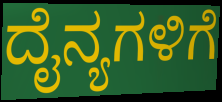
ದೈನ್ಯಗಳಿಗೆ